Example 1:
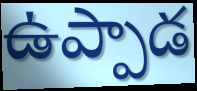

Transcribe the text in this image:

ఉప్పాడ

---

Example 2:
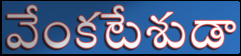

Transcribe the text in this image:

వేంకటేశుడా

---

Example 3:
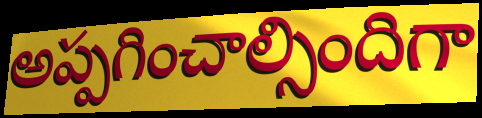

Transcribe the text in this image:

అప్పగించాల్సిందిగా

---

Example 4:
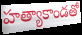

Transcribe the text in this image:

హత్యాకాండతో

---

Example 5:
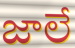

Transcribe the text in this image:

జాలే